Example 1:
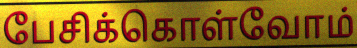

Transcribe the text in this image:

பேசிக்கொள்வோம்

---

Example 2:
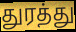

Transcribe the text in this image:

துரத்து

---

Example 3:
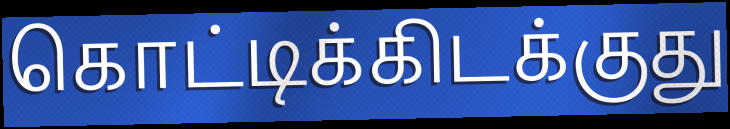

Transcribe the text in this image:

கொட்டிக்கிடக்குது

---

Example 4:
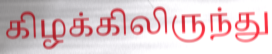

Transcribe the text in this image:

கிழக்கிலிருந்து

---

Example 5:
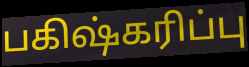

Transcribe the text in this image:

பகிஷ்கரிப்பு